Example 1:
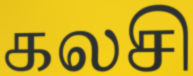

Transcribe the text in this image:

கலசி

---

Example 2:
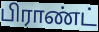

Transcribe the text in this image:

பிராண்ட்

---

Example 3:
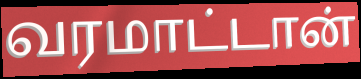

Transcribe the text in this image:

வரமாட்டான்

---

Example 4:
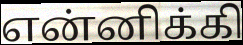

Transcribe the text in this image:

என்னிக்கி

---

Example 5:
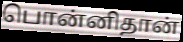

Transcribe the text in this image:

பொன்னிதான்